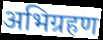
अभिग्रहण